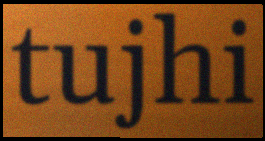
tujhi